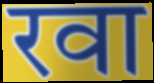
रवा